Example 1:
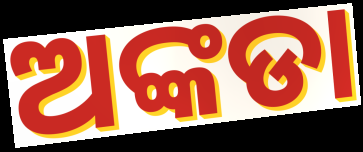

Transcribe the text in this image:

ଅଙ୍କଡା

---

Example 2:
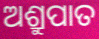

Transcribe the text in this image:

ଅଶ୍ରୁପାତ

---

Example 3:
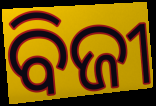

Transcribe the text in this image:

ବିଜୀ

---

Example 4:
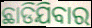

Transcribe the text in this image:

ଛାଡିଯିବାର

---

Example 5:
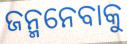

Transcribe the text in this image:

ଜନ୍ମନେବାକୁ